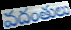
వదంతులు